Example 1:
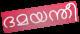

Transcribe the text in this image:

ദമയന്തീ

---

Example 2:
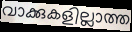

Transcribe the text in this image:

വാക്കുകളില്ലാത്ത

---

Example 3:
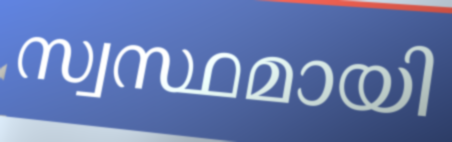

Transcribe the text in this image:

സ്വസ്ഥമായി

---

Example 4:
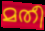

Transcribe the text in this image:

മതീ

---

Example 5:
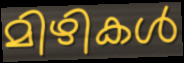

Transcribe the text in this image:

മിഴികൾ